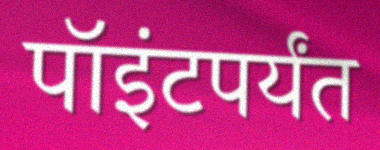
पॉइंटपर्यंत